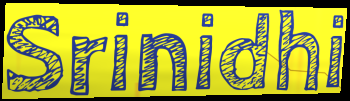
Srinidhi